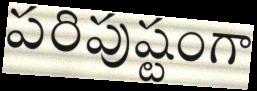
పరిపుష్టంగా